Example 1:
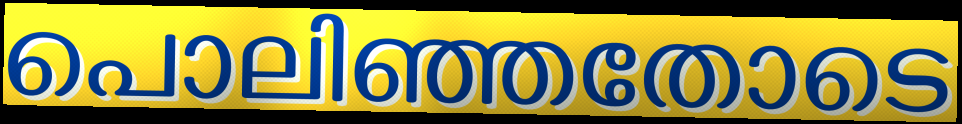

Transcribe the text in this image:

പൊലിഞ്ഞതോടെ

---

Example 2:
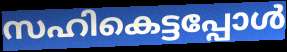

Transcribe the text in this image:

സഹികെട്ടപ്പോൾ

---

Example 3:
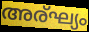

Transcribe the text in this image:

അര്ഘ്യം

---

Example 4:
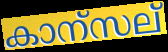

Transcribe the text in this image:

കാന്സല്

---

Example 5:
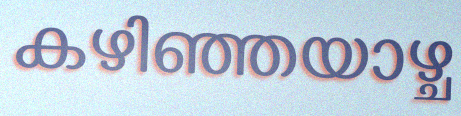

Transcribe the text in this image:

കഴിഞ്ഞയാഴ്ച